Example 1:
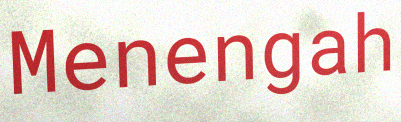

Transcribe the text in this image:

Menengah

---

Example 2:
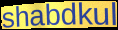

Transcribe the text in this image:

shabdkul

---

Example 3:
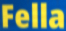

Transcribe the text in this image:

Fella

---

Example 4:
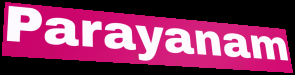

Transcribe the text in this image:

Parayanam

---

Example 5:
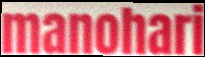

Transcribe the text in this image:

manohari